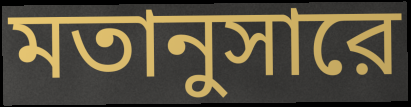
মতানুসারে